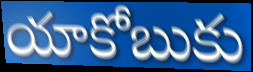
యాకోబుకు